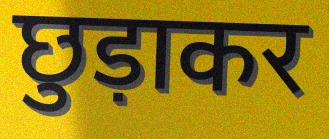
छुड़ाकर